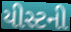
યીસ્ટની